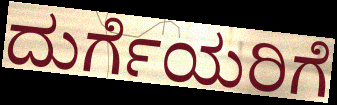
ದುರ್ಗೆಯರಿಗೆ